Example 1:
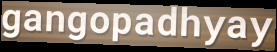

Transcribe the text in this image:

gangopadhyay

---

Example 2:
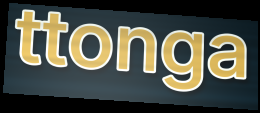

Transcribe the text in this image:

ttonga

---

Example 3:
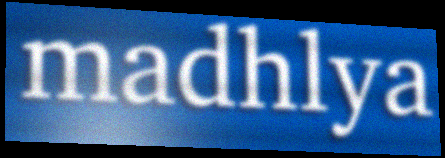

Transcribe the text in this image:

madhlya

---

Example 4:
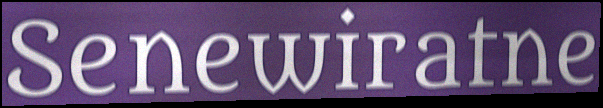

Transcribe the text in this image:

Senewiratne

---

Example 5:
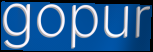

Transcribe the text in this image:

gopur